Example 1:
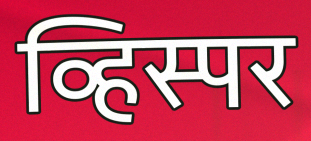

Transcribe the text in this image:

व्हिस्पर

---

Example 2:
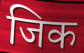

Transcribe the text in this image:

जिक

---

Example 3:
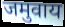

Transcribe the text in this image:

जमुवाय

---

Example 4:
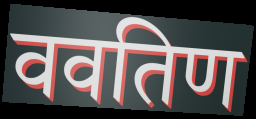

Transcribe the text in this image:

ववतिण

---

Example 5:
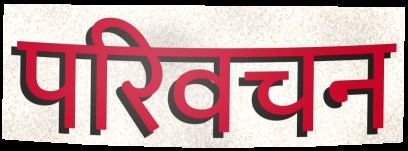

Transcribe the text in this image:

परिवचन